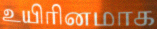
உயிரினமாக